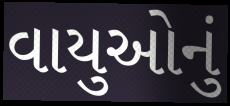
વાયુઓનું